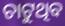
ଚାଟୁଥିବ